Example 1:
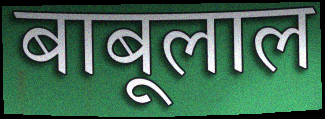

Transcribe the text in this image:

बाबूलाल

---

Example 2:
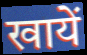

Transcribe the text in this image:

खायें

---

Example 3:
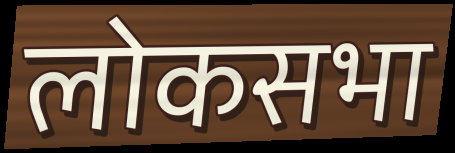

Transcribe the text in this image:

लोकसभा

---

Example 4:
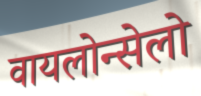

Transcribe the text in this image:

वायलोन्सेलो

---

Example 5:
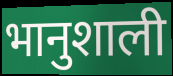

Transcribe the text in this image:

भानुशाली